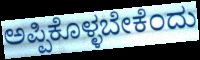
ಅಪ್ಪಿಕೊಳ್ಳಬೇಕೆಂದು